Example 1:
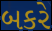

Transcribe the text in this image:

બકરે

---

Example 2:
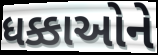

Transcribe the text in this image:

ધક્કાઓને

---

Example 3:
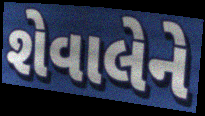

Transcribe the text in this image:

શેવાલેને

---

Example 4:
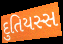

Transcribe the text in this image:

દુતિયસ્સ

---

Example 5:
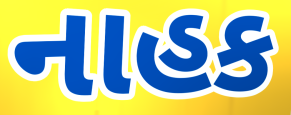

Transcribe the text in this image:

નાહક